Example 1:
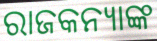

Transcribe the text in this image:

ରାଜକନ୍ୟାଙ୍କ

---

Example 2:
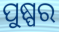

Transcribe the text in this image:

ପୁଷ୍ପର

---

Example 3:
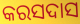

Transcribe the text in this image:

କରସଦାସ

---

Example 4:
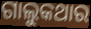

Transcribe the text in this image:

ଗାଲୁକଥାର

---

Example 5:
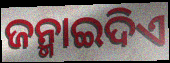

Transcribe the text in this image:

ଜନ୍ମାଇଦିଏ